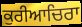
ਕੁਰੀਆਚਿਰਾ